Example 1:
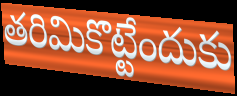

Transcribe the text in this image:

తరిమికొట్టేందుకు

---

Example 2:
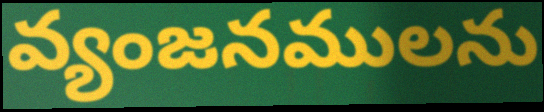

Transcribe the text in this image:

వ్యంజనములను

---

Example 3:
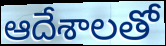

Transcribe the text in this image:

ఆదేశాలతో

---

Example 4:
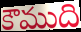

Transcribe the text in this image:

కౌముది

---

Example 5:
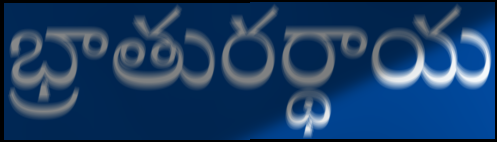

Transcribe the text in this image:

భ్రాతురర్థాయ